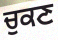
ਚੁਕਣ